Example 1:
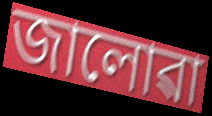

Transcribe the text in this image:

জালোৱা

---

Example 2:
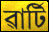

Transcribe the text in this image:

ৱাৰ্টি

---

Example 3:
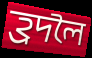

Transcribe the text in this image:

হ্ৰদলৈ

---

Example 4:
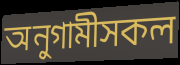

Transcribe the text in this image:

অনুগামীসকল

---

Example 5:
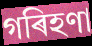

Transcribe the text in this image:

গৰিহণা